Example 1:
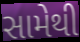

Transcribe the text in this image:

સામેથી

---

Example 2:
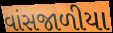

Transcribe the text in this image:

વાંસજાળીયા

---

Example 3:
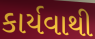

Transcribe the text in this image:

કાર્યવાથી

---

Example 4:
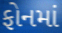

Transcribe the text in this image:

ફોનમાં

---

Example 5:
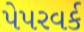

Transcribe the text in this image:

પેપરવર્ક